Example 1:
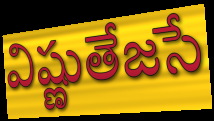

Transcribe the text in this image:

విష్ణుతేజసే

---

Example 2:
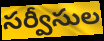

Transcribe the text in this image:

సర్వీసుల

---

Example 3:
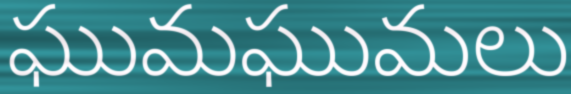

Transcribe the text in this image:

ఘుమఘుమలు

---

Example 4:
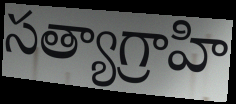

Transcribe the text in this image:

సత్యాగ్రాహి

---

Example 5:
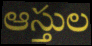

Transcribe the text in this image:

ఆస్తుల